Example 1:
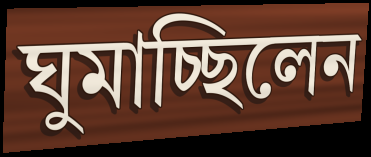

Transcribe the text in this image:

ঘুমাচ্ছিলেন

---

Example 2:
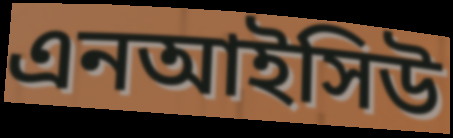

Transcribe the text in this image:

এনআইসিউ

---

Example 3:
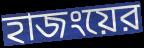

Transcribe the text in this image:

হাজংয়ের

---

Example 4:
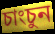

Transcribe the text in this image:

চাংচুন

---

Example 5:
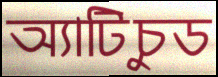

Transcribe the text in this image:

অ্যাটিচুড